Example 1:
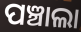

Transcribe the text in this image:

ପଞ୍ଚାଲା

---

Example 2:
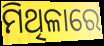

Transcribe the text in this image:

ମିଥିଳାରେ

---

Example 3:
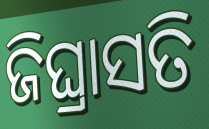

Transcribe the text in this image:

ଜିଘ୍ରାସତି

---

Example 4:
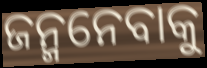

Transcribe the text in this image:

ଜନ୍ମନେବାକୁ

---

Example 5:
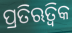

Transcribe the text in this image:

ପ୍ରତିଋତ୍ୱିକ